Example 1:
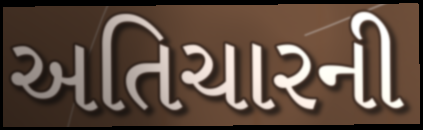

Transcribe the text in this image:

અતિચારની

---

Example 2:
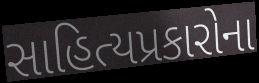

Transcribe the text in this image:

સાહિત્યપ્રકારોના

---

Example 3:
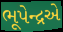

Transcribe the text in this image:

ભૂપેન્દ્રએ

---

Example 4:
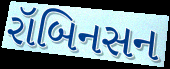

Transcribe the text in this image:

રૉબિનસન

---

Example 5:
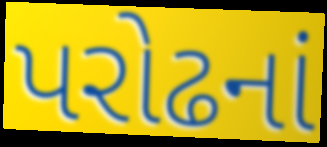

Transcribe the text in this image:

પરોઢનાં